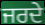
ਜਰਦੇ